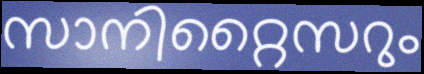
സാനിറ്റൈസറും